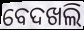
ବେଦଖଲି